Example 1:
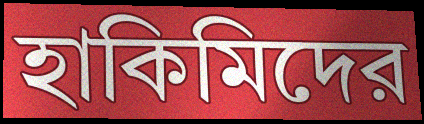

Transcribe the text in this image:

হাকিমিদের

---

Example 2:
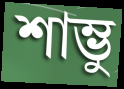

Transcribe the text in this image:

শাম্ভু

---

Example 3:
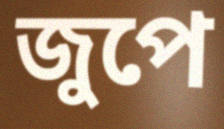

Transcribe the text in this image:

জুপে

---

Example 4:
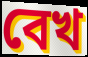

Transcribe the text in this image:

বেখ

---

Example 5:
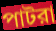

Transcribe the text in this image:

পাটরা